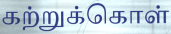
கற்றுக்கொள்